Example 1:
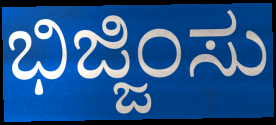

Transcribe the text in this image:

ಭಿಜ್ಜಿಂಸು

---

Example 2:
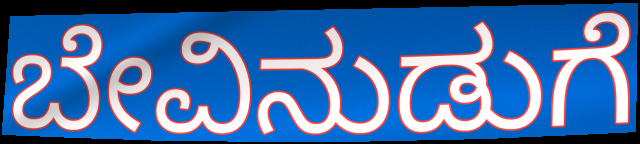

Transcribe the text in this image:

ಬೇವಿನುಡುಗೆ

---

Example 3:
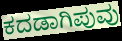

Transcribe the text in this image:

ಕದಡಾಗಿಪುವು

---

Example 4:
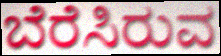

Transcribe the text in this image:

ಬೆರೆಸಿರುವ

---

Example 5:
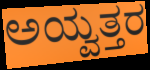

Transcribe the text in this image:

ಅಯ್ವತ್ತರ